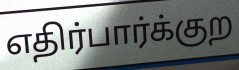
எதிர்பார்க்குற